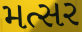
મત્સર